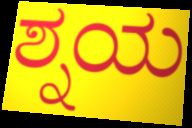
ಶ್ನಯ